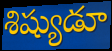
శిష్యుడూ